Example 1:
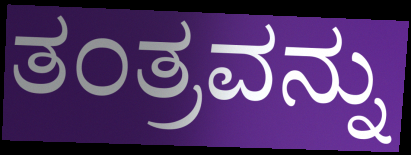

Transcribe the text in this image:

ತಂತ್ರವನ್ನು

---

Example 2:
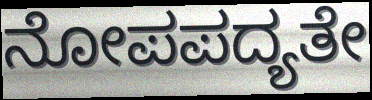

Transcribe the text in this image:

ನೋಪಪದ್ಯತೇ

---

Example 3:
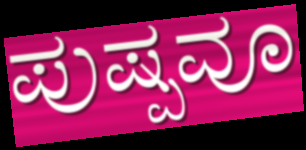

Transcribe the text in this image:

ಪುಷ್ಪವೂ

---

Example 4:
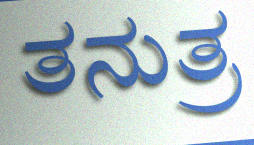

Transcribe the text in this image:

ತನುತ್ರ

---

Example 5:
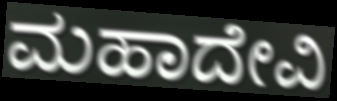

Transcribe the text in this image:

ಮಹಾದೇವಿ